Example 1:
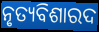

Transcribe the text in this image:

ନୃତ୍ୟବିଶାରଦ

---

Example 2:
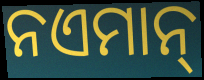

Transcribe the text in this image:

ନଏମାନ୍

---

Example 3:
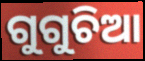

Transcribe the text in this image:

ଗୁଗୁଚିଆ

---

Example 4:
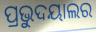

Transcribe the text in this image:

ପ୍ରଭୁଦୟାଲର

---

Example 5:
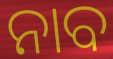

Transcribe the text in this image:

ନାବ